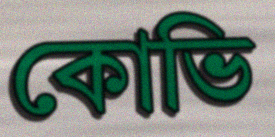
কোভি